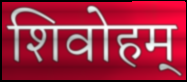
शिवोहम्